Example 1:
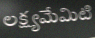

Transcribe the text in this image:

లక్ష్యమేమిటి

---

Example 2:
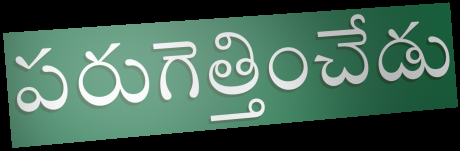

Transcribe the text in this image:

పరుగెత్తించేడు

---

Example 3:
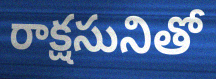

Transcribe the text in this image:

రాక్షసునితో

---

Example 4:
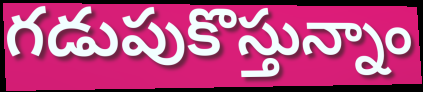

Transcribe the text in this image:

గడుపుకొస్తున్నాం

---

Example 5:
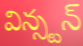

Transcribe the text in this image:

విన్స్టన్